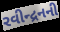
રવીન્દ્રનની